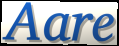
Aare